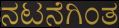
ನಟನೆಗಿಂತ